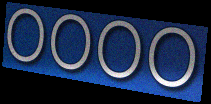
OOOO